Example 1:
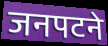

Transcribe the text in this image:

जनपटने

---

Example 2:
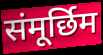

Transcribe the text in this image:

संमूर्छिम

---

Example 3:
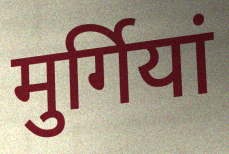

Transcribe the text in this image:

मुर्गियां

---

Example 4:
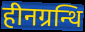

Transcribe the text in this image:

हीनग्रन्थि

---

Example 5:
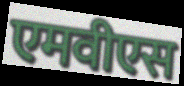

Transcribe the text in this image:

एमवीएस